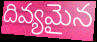
దివ్యమైన